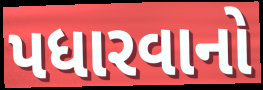
પધારવાનો